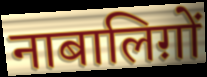
नाबालिग़ों